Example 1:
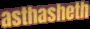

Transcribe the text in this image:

asthasheth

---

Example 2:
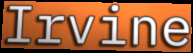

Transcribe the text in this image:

Irvine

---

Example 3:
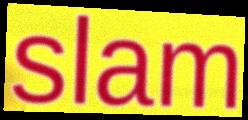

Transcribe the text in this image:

slam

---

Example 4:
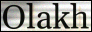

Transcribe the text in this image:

Olakh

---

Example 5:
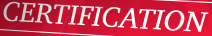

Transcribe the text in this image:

CERTIFICATION